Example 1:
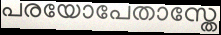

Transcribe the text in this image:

പരയോപേതാസ്തേ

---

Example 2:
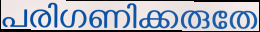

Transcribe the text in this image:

പരിഗണിക്കരുതേ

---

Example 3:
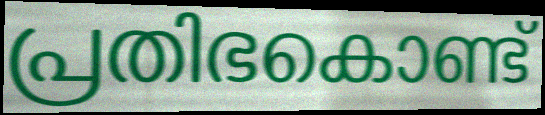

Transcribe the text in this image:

പ്രതിഭകൊണ്ട്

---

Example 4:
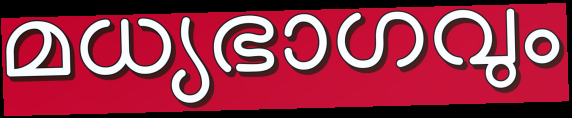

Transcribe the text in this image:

മധ്യഭാഗവും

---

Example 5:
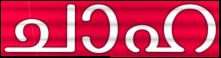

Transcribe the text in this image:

ചാഹ